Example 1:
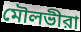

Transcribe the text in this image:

মৌলভীরা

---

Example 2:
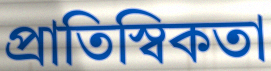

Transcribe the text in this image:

প্রাতিস্বিকতা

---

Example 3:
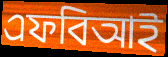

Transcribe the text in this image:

এফবিআই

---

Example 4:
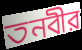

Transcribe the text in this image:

তনবীর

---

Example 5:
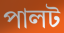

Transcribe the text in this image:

পালট